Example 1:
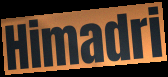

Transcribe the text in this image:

Himadri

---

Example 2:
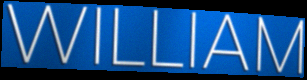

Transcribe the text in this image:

WILLIAM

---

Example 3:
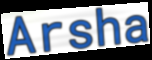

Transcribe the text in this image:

Arsha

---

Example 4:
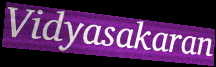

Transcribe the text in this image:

Vidyasakaran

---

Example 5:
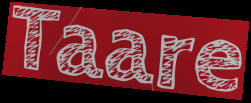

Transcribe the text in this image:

Taare